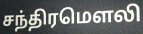
சந்திரமௌலி